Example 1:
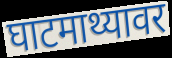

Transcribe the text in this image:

घाटमाथ्यावर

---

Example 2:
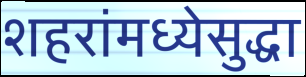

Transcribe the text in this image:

शहरांमध्येसुद्धा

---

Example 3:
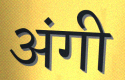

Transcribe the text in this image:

अंगी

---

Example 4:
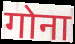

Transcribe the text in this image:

गोना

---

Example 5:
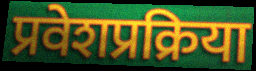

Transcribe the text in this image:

प्रवेशप्रक्रिया